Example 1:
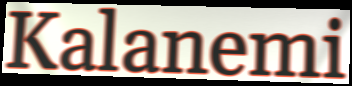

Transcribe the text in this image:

Kalanemi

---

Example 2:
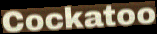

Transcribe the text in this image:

Cockatoo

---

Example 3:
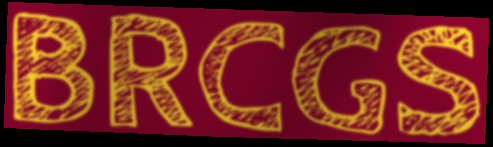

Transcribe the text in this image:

BRCGS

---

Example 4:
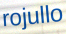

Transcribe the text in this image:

rojullo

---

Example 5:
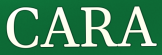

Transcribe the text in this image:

CARA